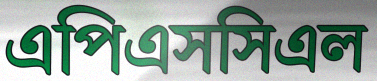
এপিএসসিএল